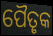
ପୈତୃକ